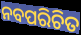
ନବପରିଚିତ